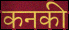
कनकी